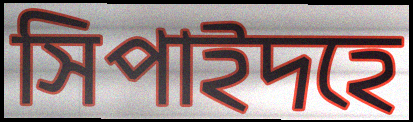
সিপাইদহে